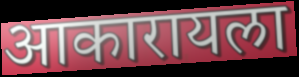
आकारायला